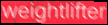
weightlifter